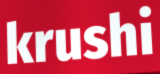
krushi